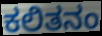
ಕಲಿತನಂ